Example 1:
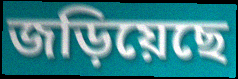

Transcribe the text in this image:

জড়িয়েছে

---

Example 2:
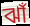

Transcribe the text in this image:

ঝাঁ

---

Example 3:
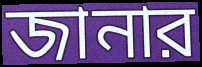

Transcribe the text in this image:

জানার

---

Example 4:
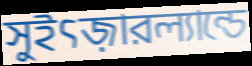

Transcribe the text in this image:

সুইৎজ়ারল্যান্ডে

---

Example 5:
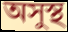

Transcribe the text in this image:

অসুস্থ